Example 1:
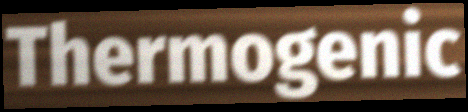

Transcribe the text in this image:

Thermogenic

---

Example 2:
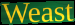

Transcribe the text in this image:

Weast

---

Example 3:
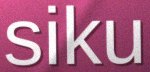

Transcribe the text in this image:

siku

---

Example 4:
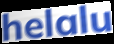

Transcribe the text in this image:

helalu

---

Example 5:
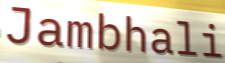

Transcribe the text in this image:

Jambhali